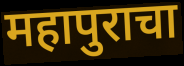
महापुराचा